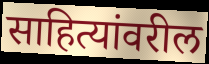
साहित्यांवरील